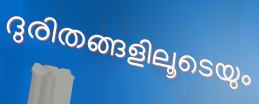
ദുരിതങ്ങളിലൂടെയും